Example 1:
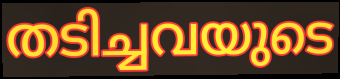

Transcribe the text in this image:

തടിച്ചവയുടെ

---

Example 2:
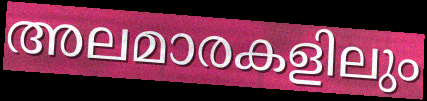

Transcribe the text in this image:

അലമാരകളിലും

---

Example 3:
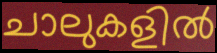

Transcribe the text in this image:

ചാലുകളിൽ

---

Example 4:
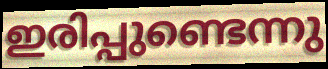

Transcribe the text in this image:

ഇരിപ്പുണ്ടെന്നു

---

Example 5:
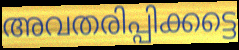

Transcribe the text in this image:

അവതരിപ്പിക്കട്ടെ